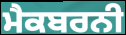
ਮੈਕਬਰਨੀ